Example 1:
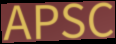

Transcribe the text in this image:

APSC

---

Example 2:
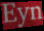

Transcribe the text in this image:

Eyn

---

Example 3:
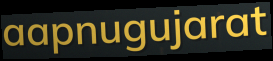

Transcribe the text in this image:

aapnugujarat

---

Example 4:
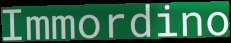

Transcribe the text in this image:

Immordino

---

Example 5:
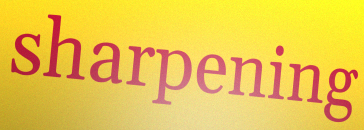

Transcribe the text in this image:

sharpening